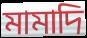
মামাদি